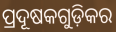
ପ୍ରଦୂଷକଗୁଡ଼ିକର